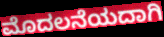
ಮೊದಲನೆಯದಾಗಿ